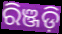
ରିଞ୍ଜଡ଼ି